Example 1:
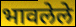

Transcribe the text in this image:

भावलेले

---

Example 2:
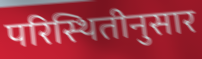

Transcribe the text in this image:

परिस्थितीनुसार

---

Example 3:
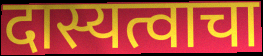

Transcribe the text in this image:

दास्यत्वाचा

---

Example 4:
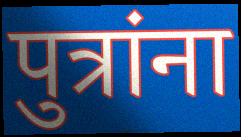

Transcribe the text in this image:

पुत्रांना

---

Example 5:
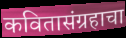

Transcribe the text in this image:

कवितासंग्रहाचा